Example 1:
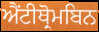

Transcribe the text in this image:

ਐਂਟੀਥ੍ਰੋਮਬਿਨ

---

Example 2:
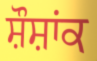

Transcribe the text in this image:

ਸ਼ੌਸ਼ਾਂਕ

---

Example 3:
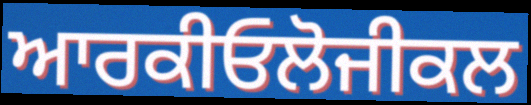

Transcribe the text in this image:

ਆਰਕੀਓਲੋਜੀਕਲ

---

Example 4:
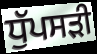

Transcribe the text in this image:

ਧੁੱਪਸੜੀ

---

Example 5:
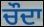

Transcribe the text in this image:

ਚੌਦਾ